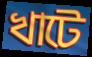
খাটে